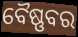
ବୈଷ୍ଣବର